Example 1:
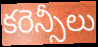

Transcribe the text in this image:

కరెన్సీలు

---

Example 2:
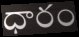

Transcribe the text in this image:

ధారం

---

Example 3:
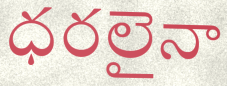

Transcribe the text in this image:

ధరలైనా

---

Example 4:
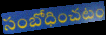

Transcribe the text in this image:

సంబోధించటం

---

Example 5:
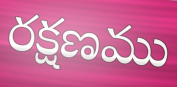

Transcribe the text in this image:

రక్షణము